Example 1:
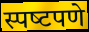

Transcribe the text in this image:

स्‍पष्‍टपणे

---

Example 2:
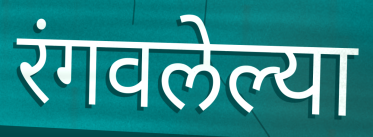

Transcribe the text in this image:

रंगवलेल्या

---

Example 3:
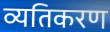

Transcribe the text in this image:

व्यतिकरण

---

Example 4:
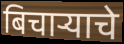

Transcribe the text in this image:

बिचाऱ्याचे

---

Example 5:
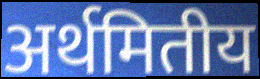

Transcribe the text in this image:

अर्थमितीय